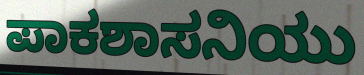
ಪಾಕಶಾಸನಿಯು